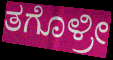
ತಗೊಳ್ರೀ